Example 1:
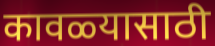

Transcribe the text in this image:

कावळ्यासाठी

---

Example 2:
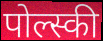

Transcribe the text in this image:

पोल्स्की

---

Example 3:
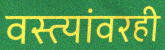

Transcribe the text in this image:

वस्त्यांवरही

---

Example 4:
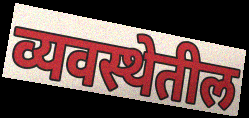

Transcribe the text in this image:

व्यवस्थेतील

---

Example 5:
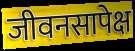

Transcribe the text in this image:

जीवनसापेक्ष